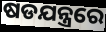
ଷଡଯନ୍ତ୍ରରେ